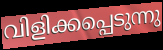
വിളിക്കപ്പെടുന്നു